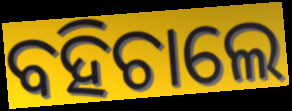
ବହିଚାଲେ